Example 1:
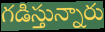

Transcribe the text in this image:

గడిస్తున్నారు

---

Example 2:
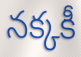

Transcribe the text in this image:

నక్కకీ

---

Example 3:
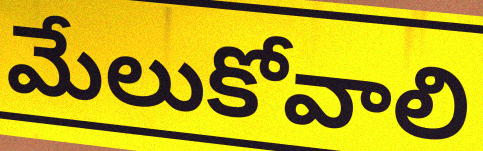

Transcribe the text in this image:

మేలుకోవాలి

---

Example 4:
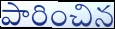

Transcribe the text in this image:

పారించిన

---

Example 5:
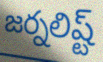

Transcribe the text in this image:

జర్నలిష్ట్